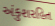
અંકુશરહિત